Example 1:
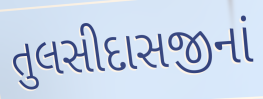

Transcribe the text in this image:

તુલસીદાસજીનાં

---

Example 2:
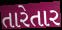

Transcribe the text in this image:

તારેતાર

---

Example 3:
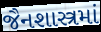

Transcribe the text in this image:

જૈનશાસ્ત્રમાં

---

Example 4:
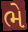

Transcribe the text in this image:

ભે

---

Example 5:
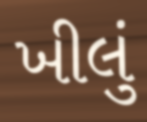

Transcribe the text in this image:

ખીલું